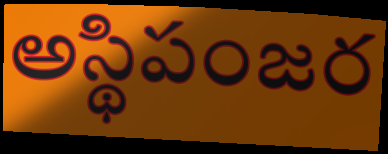
అస్థిపంజర